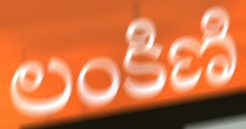
లంకిణి